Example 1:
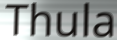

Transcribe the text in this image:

Thula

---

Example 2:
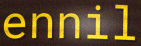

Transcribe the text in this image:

ennil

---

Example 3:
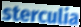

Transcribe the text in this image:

sterculia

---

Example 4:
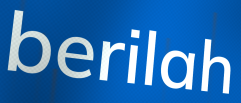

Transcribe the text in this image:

berilah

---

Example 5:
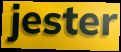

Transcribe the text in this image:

jester